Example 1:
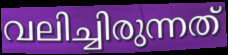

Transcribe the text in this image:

വലിച്ചിരുന്നത്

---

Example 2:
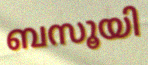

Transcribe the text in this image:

ബസൂയി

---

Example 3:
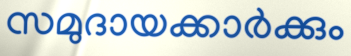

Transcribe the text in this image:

സമുദായക്കാർക്കും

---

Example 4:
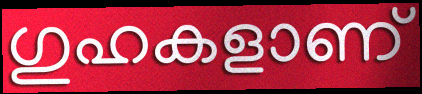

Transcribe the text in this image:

ഗുഹകളാണ്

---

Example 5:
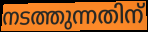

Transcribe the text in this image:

നടത്തുന്നതിന്